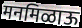
मनमिळाऊ